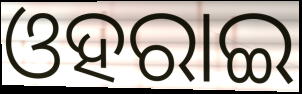
ଓହରାଇ